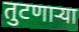
तुटणार्‍या